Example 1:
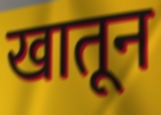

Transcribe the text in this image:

खातून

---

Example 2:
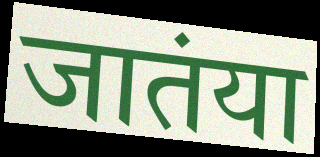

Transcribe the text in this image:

जातंया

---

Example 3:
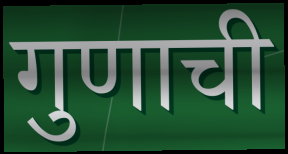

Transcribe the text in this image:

गुणाची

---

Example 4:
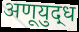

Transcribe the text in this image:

अणूयुद्ध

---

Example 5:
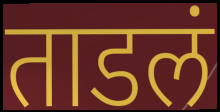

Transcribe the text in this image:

ताडलं